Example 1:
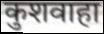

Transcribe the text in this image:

कुशवाहा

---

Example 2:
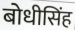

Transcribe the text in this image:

बोधीसिंह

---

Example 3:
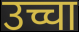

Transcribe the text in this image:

उच्चा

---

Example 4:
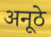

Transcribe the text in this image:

अनूठे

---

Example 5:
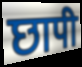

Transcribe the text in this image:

छापी